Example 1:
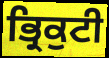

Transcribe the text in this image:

ਭ੍ਰਿਕੁਟੀ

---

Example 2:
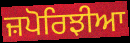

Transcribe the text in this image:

ਜ਼ਪੋਰਿਝੀਆ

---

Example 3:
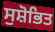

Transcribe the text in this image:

ਸੁਸ਼ੋਭਿਤ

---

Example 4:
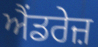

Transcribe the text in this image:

ਐਂਡਰੇਜ਼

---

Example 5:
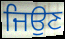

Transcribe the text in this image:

ਜਿਉਣ